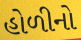
હોળીનો